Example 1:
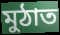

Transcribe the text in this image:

মুঠাত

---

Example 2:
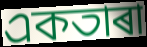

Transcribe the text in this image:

একতাৰা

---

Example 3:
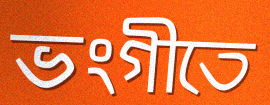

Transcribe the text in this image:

ভংগীতে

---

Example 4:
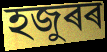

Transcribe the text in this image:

হজুৰৰ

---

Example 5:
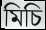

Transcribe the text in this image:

মিচি